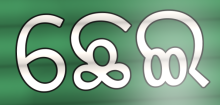
ଛେଇ